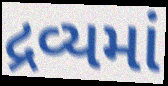
દ્રવ્યમાં